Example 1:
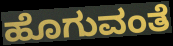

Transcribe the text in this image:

ಹೊಗುವಂತೆ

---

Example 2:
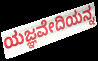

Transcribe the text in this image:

ಯಜ್ಞವೇದಿಯನ್ನ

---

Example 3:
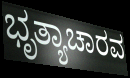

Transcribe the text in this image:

ಭೃತ್ಯಾಚಾರವ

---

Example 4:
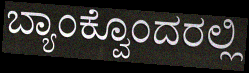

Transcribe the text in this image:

ಬ್ಯಾಂಕ್ವೊಂದರಲ್ಲಿ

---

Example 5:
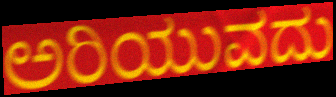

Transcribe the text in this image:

ಅರಿಯುವದು